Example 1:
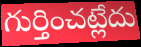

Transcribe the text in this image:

గుర్తించట్లేదు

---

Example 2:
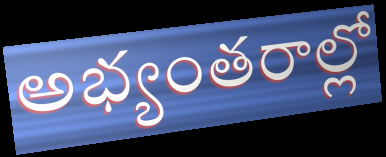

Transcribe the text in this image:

అభ్యంతరాల్లో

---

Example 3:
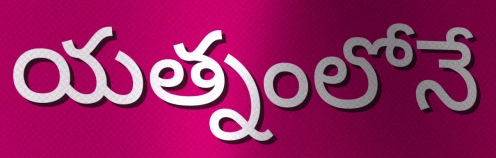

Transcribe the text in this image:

యత్నంలోనే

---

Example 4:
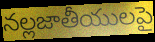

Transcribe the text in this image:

నల్లజాతీయులపై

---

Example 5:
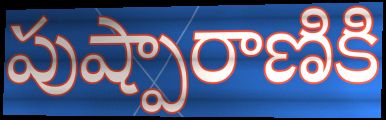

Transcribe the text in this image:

పుష్పారాణికి